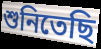
শুনিতেছি